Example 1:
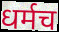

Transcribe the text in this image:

धर्मच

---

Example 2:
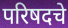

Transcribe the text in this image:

परिषदचे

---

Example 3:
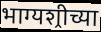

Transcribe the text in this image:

भाग्यश्रीच्या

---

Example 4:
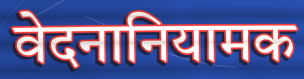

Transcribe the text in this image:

वेदनानियामक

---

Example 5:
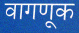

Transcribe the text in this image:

वागणूक